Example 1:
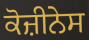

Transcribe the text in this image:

ਕੋਜ਼ੀਨੇਸ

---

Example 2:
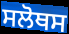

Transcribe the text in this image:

ਸਲੋਥਸ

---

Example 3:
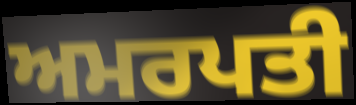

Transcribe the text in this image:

ਅਮਰਪਤੀ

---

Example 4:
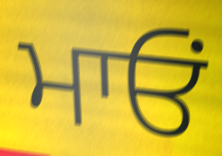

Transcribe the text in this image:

ਮਾਓਂ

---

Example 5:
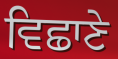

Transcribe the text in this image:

ਵਿਛਾਣੇ